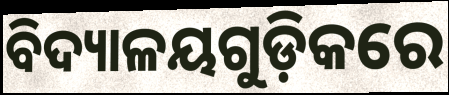
ବିଦ୍ୟାଳୟଗୁଡ଼ିକରେ